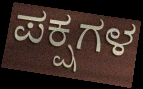
ಪಕ್ಷಗಳ